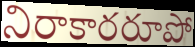
నిరాకారరూపో